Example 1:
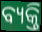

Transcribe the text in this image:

ବ୍ୟକ୍ତି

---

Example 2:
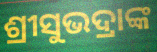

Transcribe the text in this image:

ଶ୍ରୀସୁଭଦ୍ରାଙ୍କ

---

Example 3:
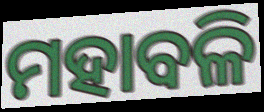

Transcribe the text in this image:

ମହାବଳି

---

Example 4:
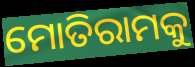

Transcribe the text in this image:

ମୋତିରାମକୁ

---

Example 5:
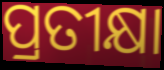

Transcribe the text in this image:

ପ୍ରତୀକ୍ଷା